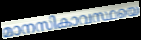
മാനസികാവസ്ഥയെ